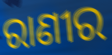
ରାଣୀର